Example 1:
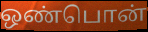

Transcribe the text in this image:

ஒண்பொன்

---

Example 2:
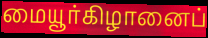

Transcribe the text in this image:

மையூர்கிழானைப்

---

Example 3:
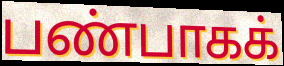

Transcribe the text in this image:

பண்பாகக்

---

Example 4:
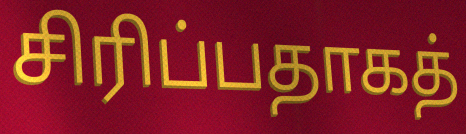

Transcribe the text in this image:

சிரிப்பதாகத்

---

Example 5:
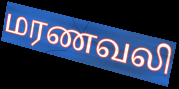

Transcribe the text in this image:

மரணவலி